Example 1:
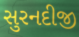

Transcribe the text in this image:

સુરનદીજી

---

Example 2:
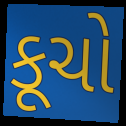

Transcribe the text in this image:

કૂચો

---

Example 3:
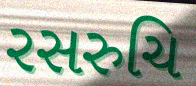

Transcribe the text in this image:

રસરુચિ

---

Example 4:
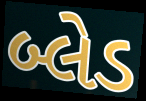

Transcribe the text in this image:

બ્લેડ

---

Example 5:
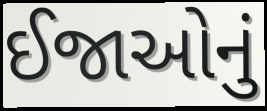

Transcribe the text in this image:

ઈજાઓનું